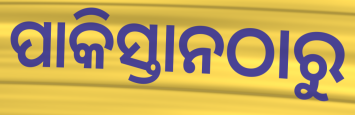
ପାକିସ୍ତାନଠାରୁ